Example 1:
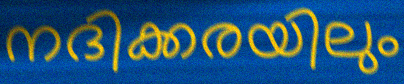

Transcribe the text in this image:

നദിക്കരയിലും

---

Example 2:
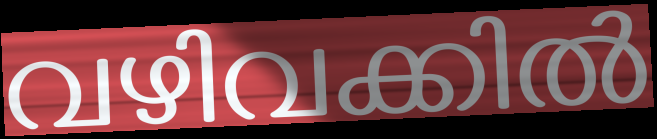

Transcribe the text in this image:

വഴിവക്കിൽ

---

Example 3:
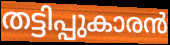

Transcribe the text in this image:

തട്ടിപ്പുകാരൻ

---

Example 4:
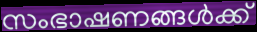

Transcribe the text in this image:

സംഭാഷണങ്ങൾക്ക്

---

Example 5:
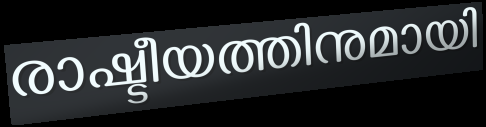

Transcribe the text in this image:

രാഷ്ടീയത്തിനുമായി